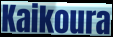
Kaikoura